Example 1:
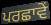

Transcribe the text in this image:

ਪਰਛਾਵੇਂ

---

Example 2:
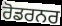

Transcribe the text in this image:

ਰੋਡਰਨਰ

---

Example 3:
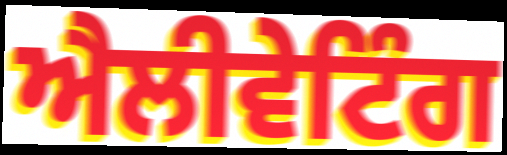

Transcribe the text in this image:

ਐਲੀਵੇਟਿੰਗ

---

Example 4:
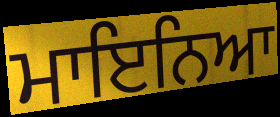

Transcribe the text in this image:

ਮਾਇਨਿਆ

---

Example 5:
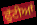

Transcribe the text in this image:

ਫੁੱਟੀਆਂ